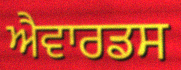
ਐਵਾਰਡਸ